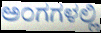
ಅಂಗಗಳಲ್ಲಿ